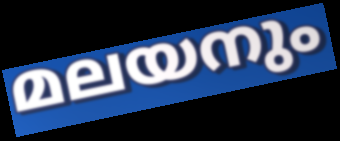
മലയനും